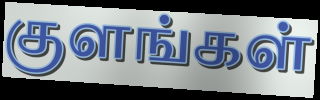
குளங்கள்